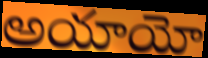
అయాయో